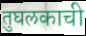
तुघलकाची